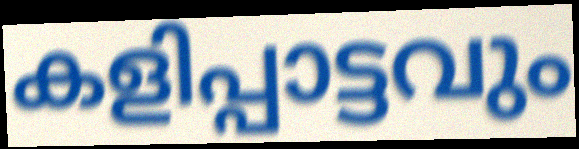
കളിപ്പാട്ടവും